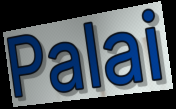
Palai